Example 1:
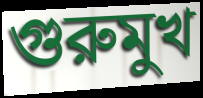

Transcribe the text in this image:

গুরুমুখ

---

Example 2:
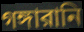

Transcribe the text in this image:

গঙ্গারানি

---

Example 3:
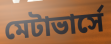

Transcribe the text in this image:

মেটাভার্সে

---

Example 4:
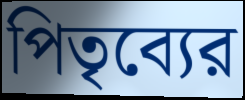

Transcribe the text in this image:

পিতৃব্যের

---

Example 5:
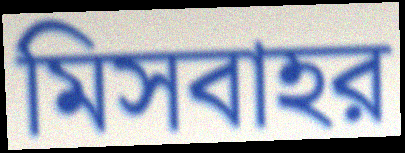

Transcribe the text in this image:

মিসবাহর